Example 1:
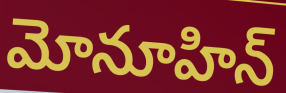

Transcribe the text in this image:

మోనూహిన్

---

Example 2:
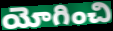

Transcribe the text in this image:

యోగించి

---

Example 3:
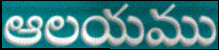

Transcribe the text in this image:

ఆలయము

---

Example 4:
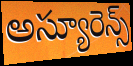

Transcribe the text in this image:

అస్యూరెన్స్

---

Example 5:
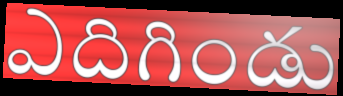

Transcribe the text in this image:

ఎదిగిండు